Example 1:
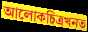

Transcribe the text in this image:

আলোকচিত্ৰখনত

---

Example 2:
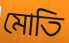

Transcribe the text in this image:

মোতি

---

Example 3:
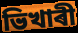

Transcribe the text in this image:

ভিখাৰী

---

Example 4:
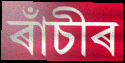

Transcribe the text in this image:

ৰাঁচীৰ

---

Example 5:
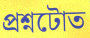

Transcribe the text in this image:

প্ৰশ্নটোত